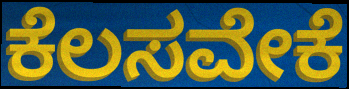
ಕೆಲಸವೇಕೆ